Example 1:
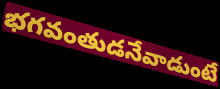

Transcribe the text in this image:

భగవంతుడనేవాడుంటే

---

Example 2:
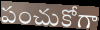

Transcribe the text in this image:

పంచుకోగా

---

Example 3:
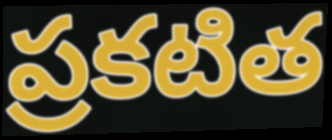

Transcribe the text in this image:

ప్రకటిత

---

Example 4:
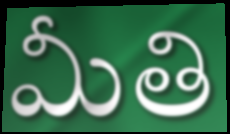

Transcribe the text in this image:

మీతి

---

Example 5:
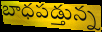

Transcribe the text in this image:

బాధపడ్తున్న